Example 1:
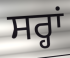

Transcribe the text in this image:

ਸਰ੍ਹਾਂ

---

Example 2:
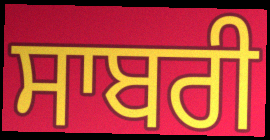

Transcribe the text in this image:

ਸਾਬਰੀ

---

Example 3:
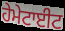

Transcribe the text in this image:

ਹੇਮੇਟਾਈਟ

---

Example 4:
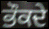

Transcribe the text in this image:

ਭੌਕਦੇ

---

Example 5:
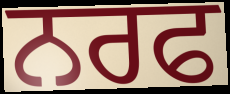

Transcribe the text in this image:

ਨਰਫ